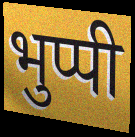
भुप्पी